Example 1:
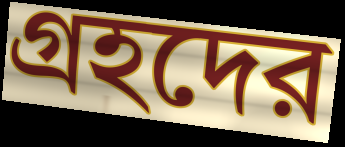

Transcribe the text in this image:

গ্রহদের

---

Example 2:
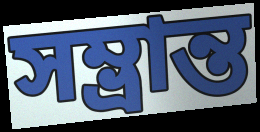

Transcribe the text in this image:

সম্ভ্রান্ত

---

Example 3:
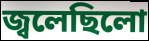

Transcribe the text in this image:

জ্বলেছিলো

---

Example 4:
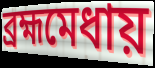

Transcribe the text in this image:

ব্রহ্মমেধায়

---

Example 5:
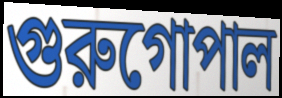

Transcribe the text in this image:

গুরুগোপাল